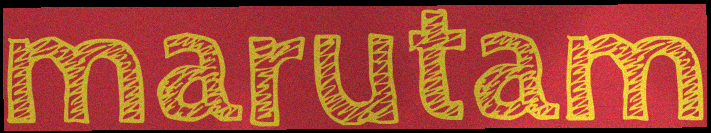
marutam